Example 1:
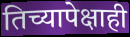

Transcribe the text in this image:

तिच्यापेक्षाही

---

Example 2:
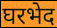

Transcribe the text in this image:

घरभेद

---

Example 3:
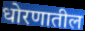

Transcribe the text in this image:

धोरणातील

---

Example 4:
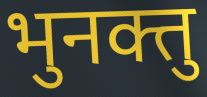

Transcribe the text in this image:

भुनक्तु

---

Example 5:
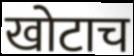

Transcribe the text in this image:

खोटाच